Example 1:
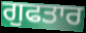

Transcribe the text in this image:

ਗੁਫਤਾਰ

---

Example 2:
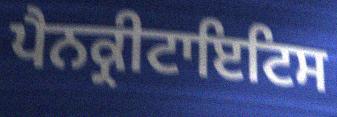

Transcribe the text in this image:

ਪੈਨਕ੍ਰੀਟਾਇਟਿਸ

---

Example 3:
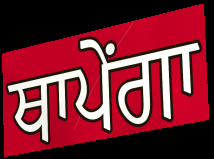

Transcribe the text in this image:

ਥਾਪੇਂਗਾ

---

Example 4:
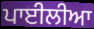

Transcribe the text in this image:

ਪਾਈਲੀਆ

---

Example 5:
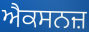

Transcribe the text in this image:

ਐਕਸਨਜ਼